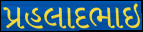
પ્રહલાદભાઇ